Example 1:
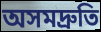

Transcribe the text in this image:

অসমদ্রুতি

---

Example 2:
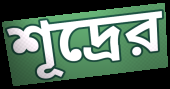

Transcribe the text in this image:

শূদ্রের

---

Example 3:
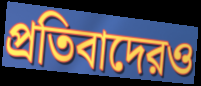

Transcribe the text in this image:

প্রতিবাদেরও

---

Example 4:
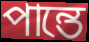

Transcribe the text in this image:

পান্তে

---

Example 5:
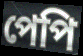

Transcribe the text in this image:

পেপি